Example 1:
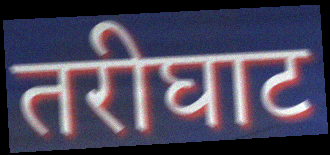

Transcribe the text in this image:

तरीघाट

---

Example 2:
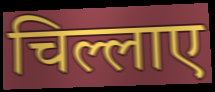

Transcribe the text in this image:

चिल्लाए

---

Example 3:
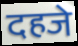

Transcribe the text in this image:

दहजे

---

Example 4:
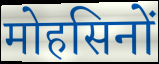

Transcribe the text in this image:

मोहसिनों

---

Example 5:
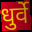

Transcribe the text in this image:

धुर्वे